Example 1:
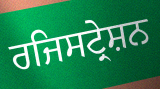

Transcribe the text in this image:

ਰਜਿਸਟ੍ਰੇਸ਼ਨ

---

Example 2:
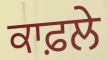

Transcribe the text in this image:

ਕਾਫ਼ਲੇ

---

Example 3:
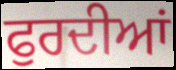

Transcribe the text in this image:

ਫੁਰਦੀਆਂ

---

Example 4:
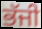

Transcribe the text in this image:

ਭੱਜੀ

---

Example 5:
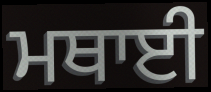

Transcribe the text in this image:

ਮਥਾਈ